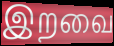
இறவை